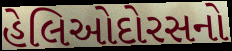
હેલિઓદોરસનો